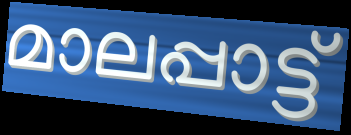
മാലപ്പാട്ട്